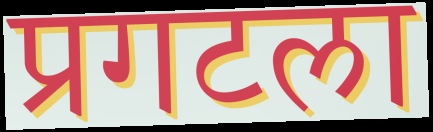
प्रगटला